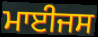
ਮਾਈਜਸ